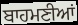
ਬਾਹਮਣੀਆਂ